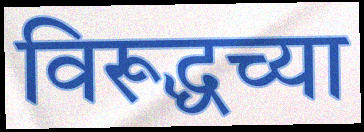
विरूद्धच्या